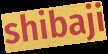
shibaji